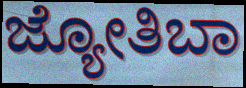
ಜ್ಯೋತಿಬಾ